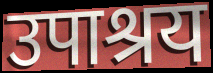
उपाश्रय